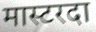
मास्टरदा